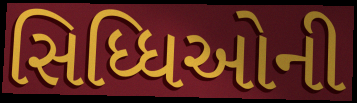
સિધ્ધિઓની